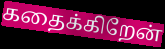
கதைக்கிறேன்